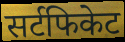
सर्टफिकेट